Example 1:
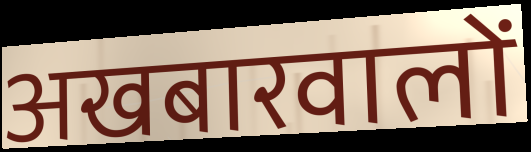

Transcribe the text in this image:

अखबारवालों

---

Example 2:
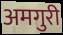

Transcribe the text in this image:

अमगुरी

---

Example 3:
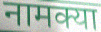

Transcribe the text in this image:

नामक्या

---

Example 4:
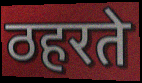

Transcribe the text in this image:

ठहरते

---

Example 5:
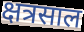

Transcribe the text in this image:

क्षत्रसाल